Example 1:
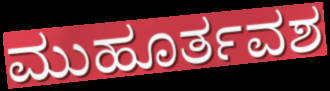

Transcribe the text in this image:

ಮುಹೂರ್ತವಶ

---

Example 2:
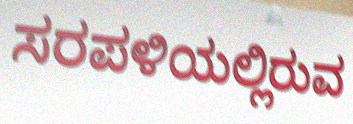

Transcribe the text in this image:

ಸರಪಳಿಯಲ್ಲಿರುವ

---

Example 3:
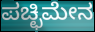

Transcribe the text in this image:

ಪಚ್ಛಿಮೇನ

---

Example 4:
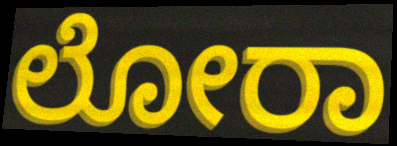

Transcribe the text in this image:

ಲೋರಾ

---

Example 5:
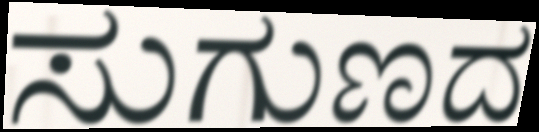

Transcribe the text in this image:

ಸುಗುಣದ